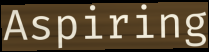
Aspiring